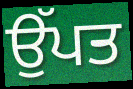
ਉੱਪਤ